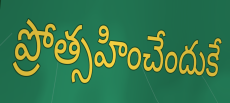
ప్రోత్సహించేందుకే